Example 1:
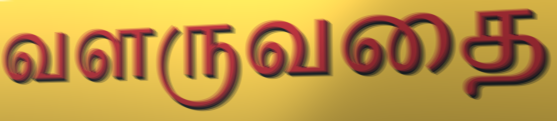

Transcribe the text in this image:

வளருவதை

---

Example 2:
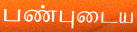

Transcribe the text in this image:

பண்புடைய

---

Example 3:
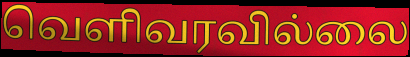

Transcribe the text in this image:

வெளிவரவில்லை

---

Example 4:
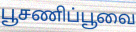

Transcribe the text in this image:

பூசணிப்பூவை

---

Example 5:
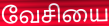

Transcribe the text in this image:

வேசியை